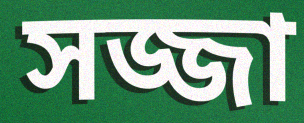
সজ্জা